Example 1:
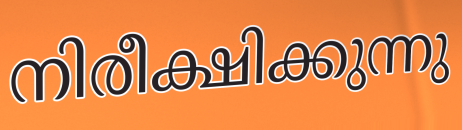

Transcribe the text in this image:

നിരീക്ഷിക്കുന്നു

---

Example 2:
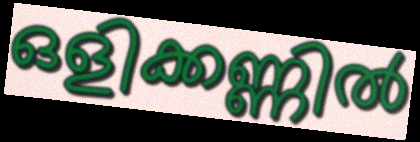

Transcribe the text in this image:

ഒളിക്കണ്ണിൽ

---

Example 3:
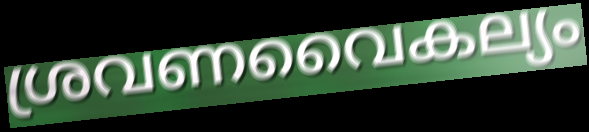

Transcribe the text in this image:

ശ്രവണവൈകല്യം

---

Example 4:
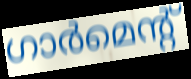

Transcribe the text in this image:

ഗാർമെന്റ്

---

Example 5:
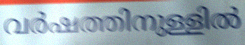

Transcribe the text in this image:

വർഷത്തിനുള്ളിൽ